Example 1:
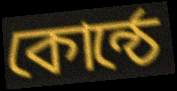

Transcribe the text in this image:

কোন্ঠে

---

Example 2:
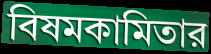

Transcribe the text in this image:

বিষমকামিতার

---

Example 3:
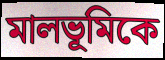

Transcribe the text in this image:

মালভূমিকে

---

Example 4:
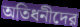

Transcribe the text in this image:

অতিধনীদের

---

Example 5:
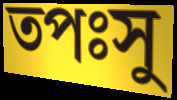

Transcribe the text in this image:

তপঃসু